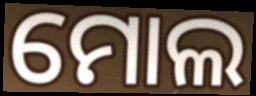
ମୋଲ